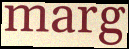
marg